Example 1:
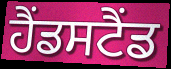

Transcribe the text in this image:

ਹੈਂਡਸਟੈਂਡ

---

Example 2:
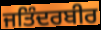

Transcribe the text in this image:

ਜਤਿੰਦਰਬੀਰ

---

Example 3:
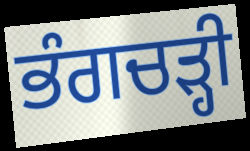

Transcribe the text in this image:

ਭੰਗਚੜ੍ਹੀ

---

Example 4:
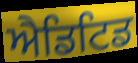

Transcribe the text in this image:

ਐਡਿਟਿਡ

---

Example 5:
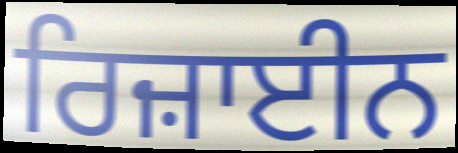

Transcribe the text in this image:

ਰਿਜ਼ਾਈਨ